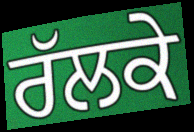
ਰੱਲਕੇ